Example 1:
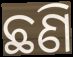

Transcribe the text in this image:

ଛଣି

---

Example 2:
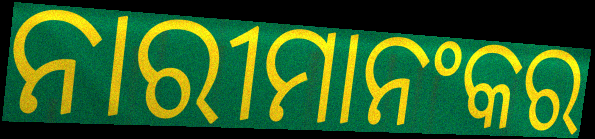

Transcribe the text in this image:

ନାରୀମାନଂକର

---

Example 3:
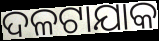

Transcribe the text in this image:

ଦଳଟାଯାକ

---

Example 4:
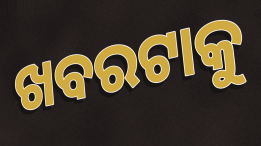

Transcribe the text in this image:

ଖବରଟାକୁ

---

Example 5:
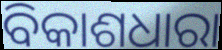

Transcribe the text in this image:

ବିକାଶଧାରା